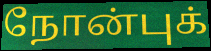
நோன்புக்